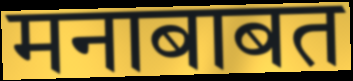
मनाबाबत